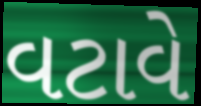
વટાવે